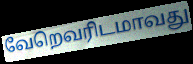
வேறெவரிடமாவது